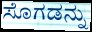
ಸೊಗಡನ್ನು